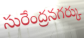
సురేంద్రనగర్కు